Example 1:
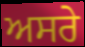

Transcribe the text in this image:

ਅਸਰੇ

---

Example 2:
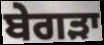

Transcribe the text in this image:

ਬੇਗੜਾ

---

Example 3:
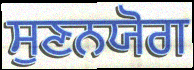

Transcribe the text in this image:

ਸੁਣਨਯੋਗ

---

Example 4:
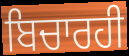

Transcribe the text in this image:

ਬਿਚਾਰਹੀ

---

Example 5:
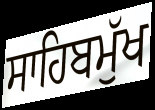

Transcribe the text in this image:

ਸਾਹਿਬਮੁੱਖ